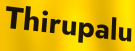
Thirupalu